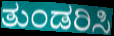
ತುಂಡರಿಸಿ